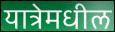
यात्रेमधील